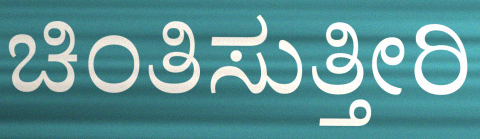
ಚಿಂತಿಸುತ್ತೀರಿ